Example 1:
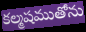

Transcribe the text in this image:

కల్మషముతోను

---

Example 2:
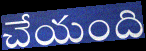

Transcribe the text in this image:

చేయంది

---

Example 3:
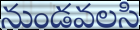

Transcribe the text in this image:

నుండవలసి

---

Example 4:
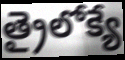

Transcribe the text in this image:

త్రైలోక్యే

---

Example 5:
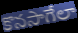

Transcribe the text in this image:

కొనసాగేలా